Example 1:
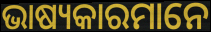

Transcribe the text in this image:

ଭାଷ୍ୟକାରମାନେ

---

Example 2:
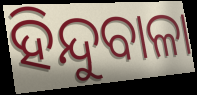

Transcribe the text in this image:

ହିନ୍ଦୁବାଳା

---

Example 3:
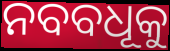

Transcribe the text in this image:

ନବବଧୂକୁ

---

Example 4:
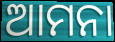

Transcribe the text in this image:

ଆମନା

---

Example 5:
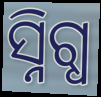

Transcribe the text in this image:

ସ୍ନିଗ୍ଧ